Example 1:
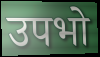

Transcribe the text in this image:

उपभो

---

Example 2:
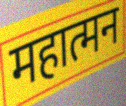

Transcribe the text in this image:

महात्मन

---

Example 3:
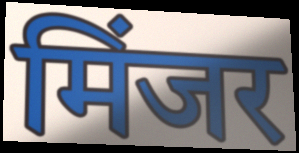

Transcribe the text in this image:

मिंजर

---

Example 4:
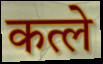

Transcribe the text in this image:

कत्ले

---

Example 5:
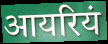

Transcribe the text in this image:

आयरियं